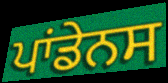
ਪਾਂਡੇਨਸ